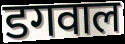
डगवाल